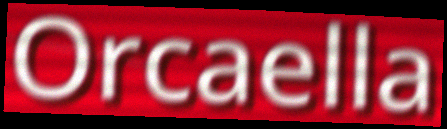
Orcaella